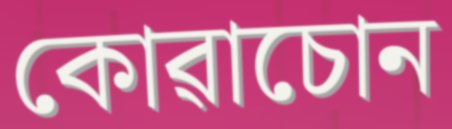
কোৱাচোন